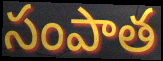
సంపాత